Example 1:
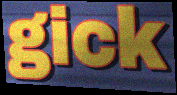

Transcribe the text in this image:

gick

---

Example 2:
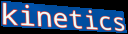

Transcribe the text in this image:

kinetics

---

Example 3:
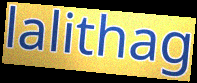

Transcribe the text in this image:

lalithag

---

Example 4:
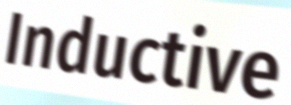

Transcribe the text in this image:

Inductive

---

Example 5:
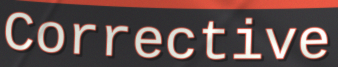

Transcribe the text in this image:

Corrective